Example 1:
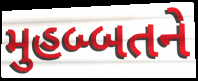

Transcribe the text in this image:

મુહબ્બતને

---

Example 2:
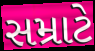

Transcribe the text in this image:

સમ્રાટે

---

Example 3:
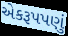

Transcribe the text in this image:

એકરૂપપણું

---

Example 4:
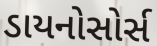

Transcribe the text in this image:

ડાયનોસોર્સ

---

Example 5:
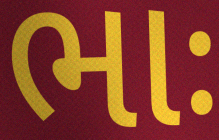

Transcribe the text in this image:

ભાઃ